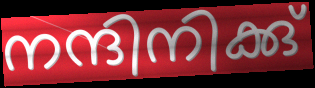
നന്ദിനിക്കു്